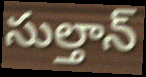
సుల్తాన్